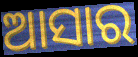
ଆସାର